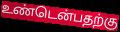
உண்டென்பதற்கு